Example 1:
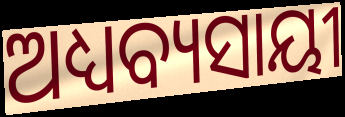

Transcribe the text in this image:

ଅଧ୍ୟବ୍ୟସାୟୀ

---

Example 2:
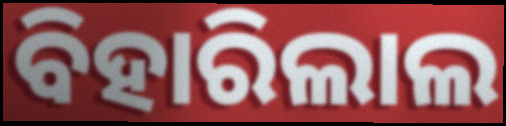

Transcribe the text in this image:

ବିହାରିଲାଲ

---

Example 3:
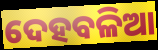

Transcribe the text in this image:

ଦେହବଳିଆ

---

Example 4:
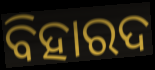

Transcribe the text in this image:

ବିହାରଦ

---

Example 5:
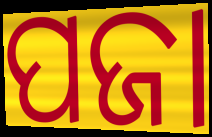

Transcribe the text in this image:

ପଜା